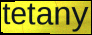
tetany